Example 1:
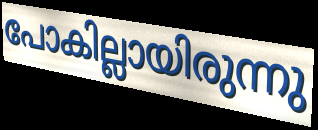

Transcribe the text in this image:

പോകില്ലായിരുന്നു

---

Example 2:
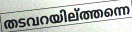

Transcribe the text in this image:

തടവറയില്ത്തന്നെ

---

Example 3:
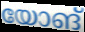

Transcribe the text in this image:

യോങ്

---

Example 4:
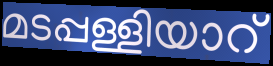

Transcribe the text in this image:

മടപ്പള്ളിയാറ്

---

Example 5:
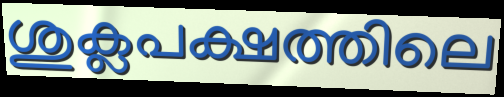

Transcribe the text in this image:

ശുക്ലപക്ഷത്തിലെ